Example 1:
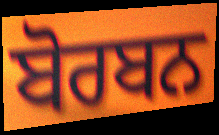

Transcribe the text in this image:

ਬੋਰਬਨ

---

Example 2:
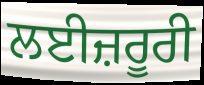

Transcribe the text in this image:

ਲਈਜ਼ਰੂਰੀ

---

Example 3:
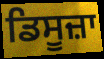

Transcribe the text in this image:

ਡਿਸੂਜ਼ਾ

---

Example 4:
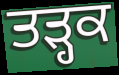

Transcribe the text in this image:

ਤੜ੍ਹਕ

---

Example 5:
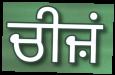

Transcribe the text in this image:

ਚੀਜ਼ਂ